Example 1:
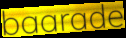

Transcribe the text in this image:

baarade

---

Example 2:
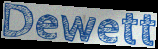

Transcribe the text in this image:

Dewett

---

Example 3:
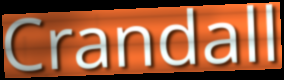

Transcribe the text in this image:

Crandall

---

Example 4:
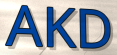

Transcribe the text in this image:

AKD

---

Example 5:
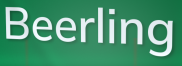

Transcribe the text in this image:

Beerling